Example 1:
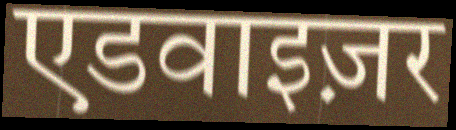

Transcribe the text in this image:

एडवाइज़र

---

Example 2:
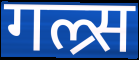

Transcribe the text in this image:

गल्र्स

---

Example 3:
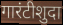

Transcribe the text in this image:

गारंटीशुदा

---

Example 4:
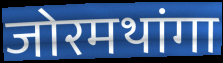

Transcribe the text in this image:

जोरमथांगा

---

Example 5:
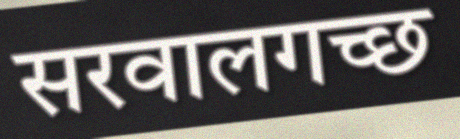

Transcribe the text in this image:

सरवालगच्छ